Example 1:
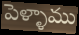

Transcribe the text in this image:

పెళ్ళాము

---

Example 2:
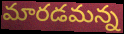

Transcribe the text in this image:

మారడమన్న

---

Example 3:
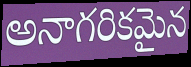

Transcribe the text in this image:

అనాగరికమైన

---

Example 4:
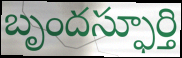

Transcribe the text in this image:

బృందస్ఫూర్తి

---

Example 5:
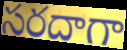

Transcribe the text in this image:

సరదాగా